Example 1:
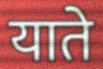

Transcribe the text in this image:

याते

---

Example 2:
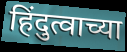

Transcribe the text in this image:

हिंदुत्वाच्या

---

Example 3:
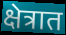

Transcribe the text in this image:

क्षेत्रात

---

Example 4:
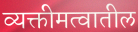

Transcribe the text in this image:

व्यक्तीमत्वातील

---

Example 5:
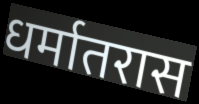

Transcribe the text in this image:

धर्मातरास